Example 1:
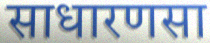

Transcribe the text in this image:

साधारणसा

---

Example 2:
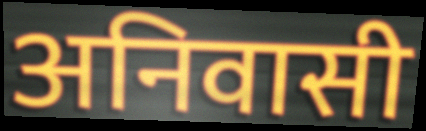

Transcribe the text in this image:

अनिवासी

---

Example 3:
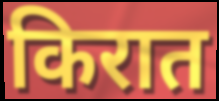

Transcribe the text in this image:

किरात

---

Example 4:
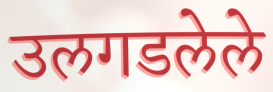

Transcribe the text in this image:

उलगडलेले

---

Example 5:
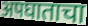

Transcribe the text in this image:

अपघाताचा